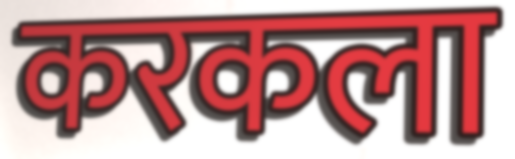
करकला